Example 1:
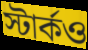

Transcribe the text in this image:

স্টার্কও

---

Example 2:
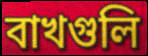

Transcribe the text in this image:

বাখগুলি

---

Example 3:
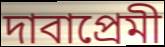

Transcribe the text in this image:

দাবাপ্রেমী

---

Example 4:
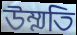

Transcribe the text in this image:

উম্মতি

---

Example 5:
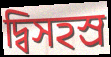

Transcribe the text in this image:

দ্বিসহস্র